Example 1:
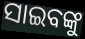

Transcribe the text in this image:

ସାଇବଙ୍କୁ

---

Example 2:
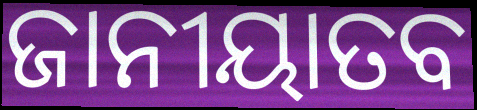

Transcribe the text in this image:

ଜାନୀୟାତବ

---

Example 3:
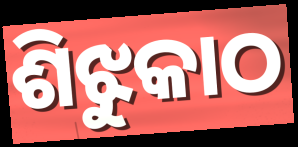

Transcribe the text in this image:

ଶିଝୁକାଠ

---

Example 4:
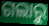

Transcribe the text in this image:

ଗଲାରୁ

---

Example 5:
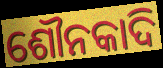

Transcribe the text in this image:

ଶୌନକାଦି